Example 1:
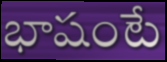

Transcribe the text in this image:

భాషంటే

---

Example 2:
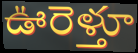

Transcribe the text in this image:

ఊరెళ్తూ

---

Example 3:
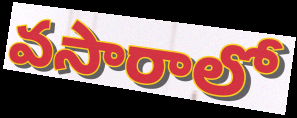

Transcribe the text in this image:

వసారాలో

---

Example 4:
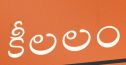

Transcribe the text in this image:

కీలలం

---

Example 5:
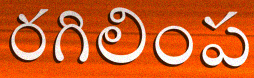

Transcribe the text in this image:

రగిలింప